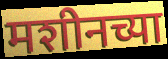
मशीनच्या